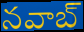
నవాబ్